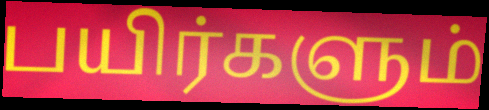
பயிர்களும்